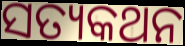
ସତ୍ୟକଥନ